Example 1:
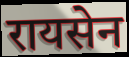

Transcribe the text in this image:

रायसेन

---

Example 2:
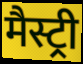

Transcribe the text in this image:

मैस्ट्री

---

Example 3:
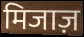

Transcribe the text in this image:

मिजाज़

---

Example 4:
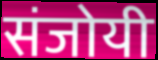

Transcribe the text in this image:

संजोयी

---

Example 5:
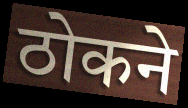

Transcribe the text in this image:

ठोकने